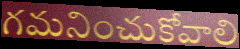
గమనించుకోవాలి